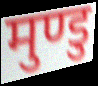
मुण्डु